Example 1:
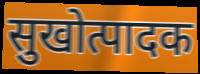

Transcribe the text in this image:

सुखोत्पादक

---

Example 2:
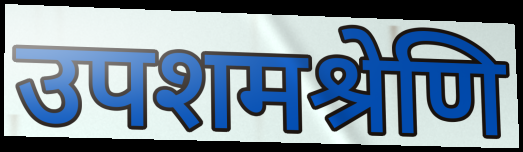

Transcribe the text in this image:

उपशमश्रेणि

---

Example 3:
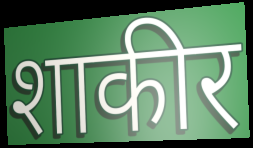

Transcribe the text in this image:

शाकीर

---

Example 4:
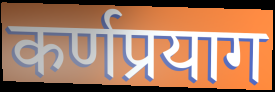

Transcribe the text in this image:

कर्णप्रयाग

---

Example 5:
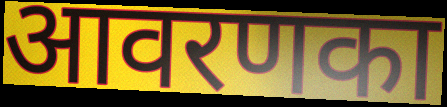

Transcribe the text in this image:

आवरणका